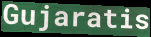
Gujaratis